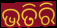
ଭତିରି